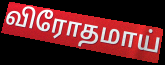
விரோதமாய்